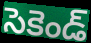
సెకెండ్